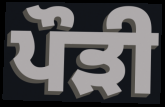
ਪੌੜੀ